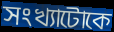
সংখ্যাটোকে